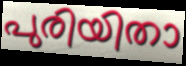
പുരിയിതാ